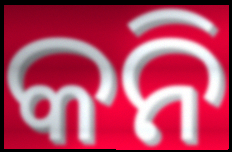
କନି